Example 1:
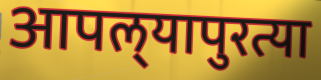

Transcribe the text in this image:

आपल्यापुरत्या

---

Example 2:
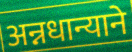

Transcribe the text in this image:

अन्नधान्याने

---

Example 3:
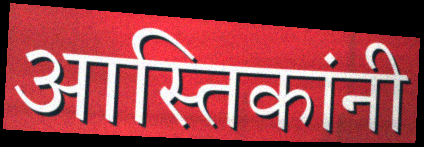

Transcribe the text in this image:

आस्तिकांनी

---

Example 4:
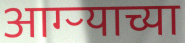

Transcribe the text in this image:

आग्ऱ्याच्या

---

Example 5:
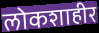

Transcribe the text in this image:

लोकशाहीर